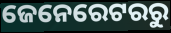
ଜେନେରେଟରରୁ